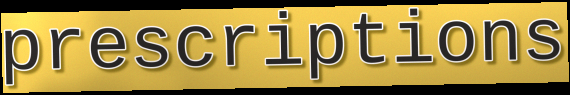
prescriptions